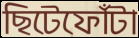
ছিটেফোঁটা